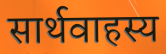
सार्थवाहस्य